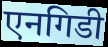
एनगिडी